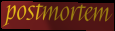
postmortem